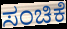
ಸಂಚಿಕೆ